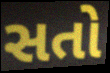
સતો